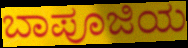
ಬಾಪೂಜಿಯ